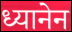
ध्यानेन